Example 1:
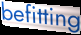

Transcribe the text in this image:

befitting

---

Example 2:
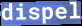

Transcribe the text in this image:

dispel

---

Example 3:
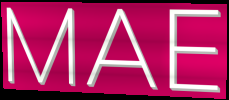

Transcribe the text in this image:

MAE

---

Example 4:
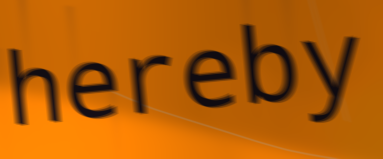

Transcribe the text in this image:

hereby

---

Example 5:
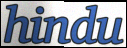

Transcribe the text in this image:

hindu